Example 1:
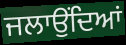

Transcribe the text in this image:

ਜਲਾਉਂਦਿਆਂ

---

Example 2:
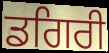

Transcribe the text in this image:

ਡਗਿਰੀ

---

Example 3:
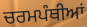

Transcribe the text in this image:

ਚਰਮਪੰਥੀਆਂ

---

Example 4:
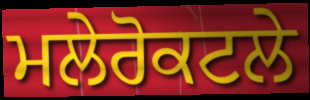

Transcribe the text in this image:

ਮਲੇਰੋਕਟਲੇ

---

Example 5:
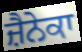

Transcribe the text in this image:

ਜ਼ੈਨੇਕਾ